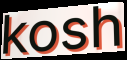
kosh